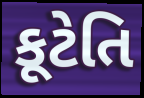
કૂટેતિ